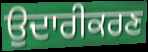
ਉਦਾਰੀਕਰਣ